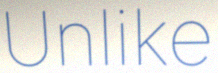
Unlike